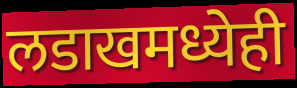
लडाखमध्येही